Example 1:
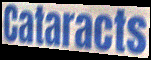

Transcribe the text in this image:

Cataracts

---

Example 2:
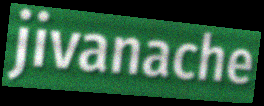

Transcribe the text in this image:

jivanache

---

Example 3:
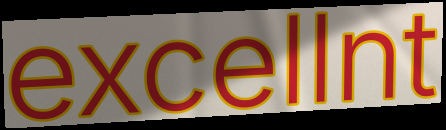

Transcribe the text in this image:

excellnt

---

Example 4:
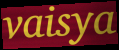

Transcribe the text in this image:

vaisya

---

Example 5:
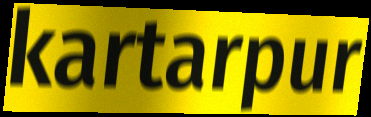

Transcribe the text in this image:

kartarpur